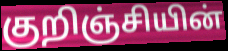
குறிஞ்சியின்